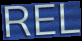
REL